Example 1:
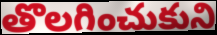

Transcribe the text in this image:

తొలగించుకుని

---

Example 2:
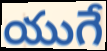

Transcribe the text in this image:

యుగే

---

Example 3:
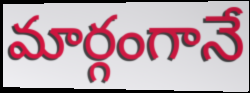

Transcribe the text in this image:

మార్గంగానే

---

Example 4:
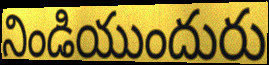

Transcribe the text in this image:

నిండియుందురు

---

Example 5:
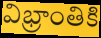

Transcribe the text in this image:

విభ్రాంతికి